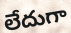
లేదుగా